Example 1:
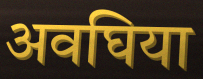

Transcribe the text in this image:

अवघिया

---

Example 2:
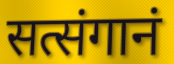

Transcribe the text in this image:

सत्संगानं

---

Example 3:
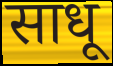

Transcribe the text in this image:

साधू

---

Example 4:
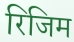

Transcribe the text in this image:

रिजिम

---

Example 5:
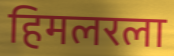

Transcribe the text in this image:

हिमलरला